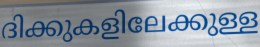
ദിക്കുകളിലേക്കുള്ള